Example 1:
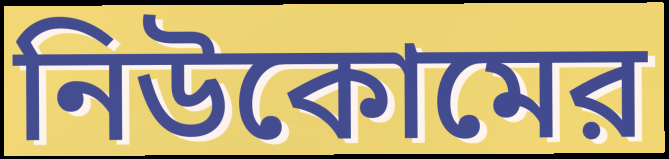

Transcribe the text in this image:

নিউকোমের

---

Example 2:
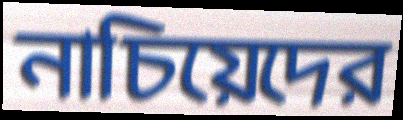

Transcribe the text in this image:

নাচিয়েদের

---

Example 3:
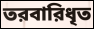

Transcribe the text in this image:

তরবারিধৃত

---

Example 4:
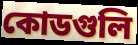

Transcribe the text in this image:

কোডগুলি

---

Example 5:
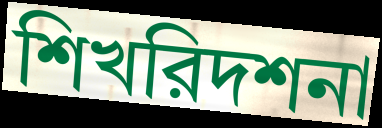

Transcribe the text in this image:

শিখরিদশনা